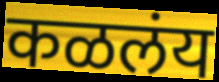
कळलंय